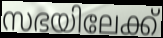
സഭയിലേക്ക്